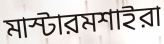
মাস্টারমশাইরা